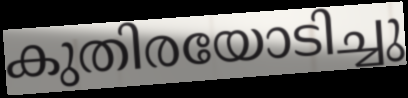
കുതിരയോടിച്ചു